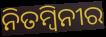
ନିତମ୍ବିନୀର